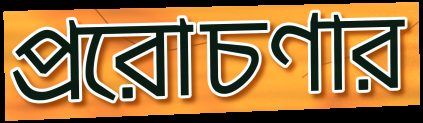
প্ররোচণার